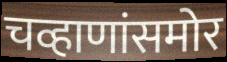
चव्हाणांसमोर